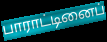
பாராட்டினைப்